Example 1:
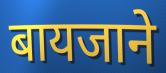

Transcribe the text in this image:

बायजाने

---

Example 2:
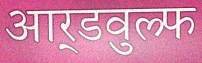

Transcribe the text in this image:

आर्डवुल्फ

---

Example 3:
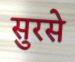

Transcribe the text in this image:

सुरसे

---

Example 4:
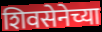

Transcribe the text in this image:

शिवसेनेच्या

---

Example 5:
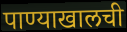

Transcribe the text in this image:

पाण्याखालची